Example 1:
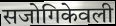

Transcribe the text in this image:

सजोगिकेवली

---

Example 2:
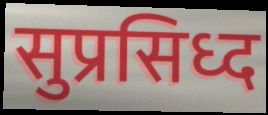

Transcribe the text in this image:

सुप्रसिध्द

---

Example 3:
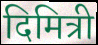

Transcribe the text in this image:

दिमित्री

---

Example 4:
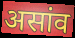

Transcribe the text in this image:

असांव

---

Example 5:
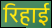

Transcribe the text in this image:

रिहाई